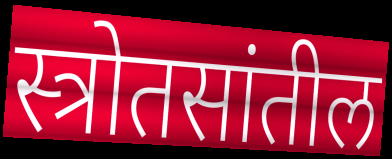
स्त्रोतसांतील